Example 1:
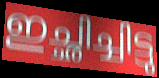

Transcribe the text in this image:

ഇച്ഛിച്ചിട്ടു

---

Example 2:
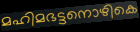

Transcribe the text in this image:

മഹിമഭട്ടനൊഴികെ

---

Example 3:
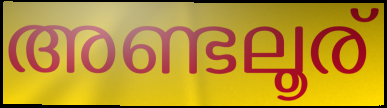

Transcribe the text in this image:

അണ്ടലൂര്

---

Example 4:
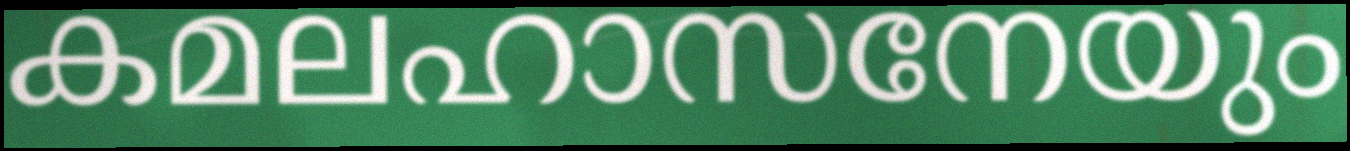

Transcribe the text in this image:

കമലഹാസനേയും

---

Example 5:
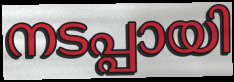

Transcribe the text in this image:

നടപ്പായി